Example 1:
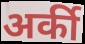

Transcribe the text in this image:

अर्की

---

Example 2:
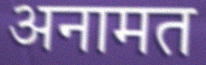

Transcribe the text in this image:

अनामत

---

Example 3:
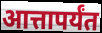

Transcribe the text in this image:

आत्तापर्यंत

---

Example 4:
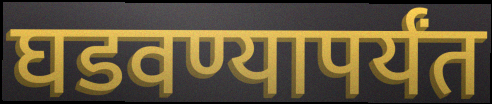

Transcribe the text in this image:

घडवण्यापर्यंत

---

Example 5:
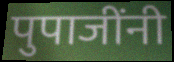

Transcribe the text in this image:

पुपाजींनी